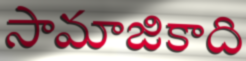
సామాజికాది